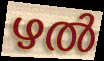
ഴൽ